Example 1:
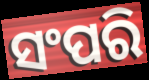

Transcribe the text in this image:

ସଂପରି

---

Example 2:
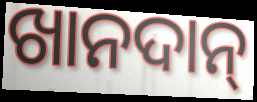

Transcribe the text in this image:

ଖାନଦାନ୍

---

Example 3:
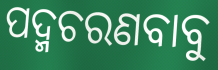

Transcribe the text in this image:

ପଦ୍ମଚରଣବାବୁ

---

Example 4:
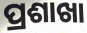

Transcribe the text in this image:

ପ୍ରଶାଖା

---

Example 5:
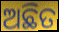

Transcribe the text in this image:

ଅଛିତ